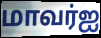
மாவர்ஐ